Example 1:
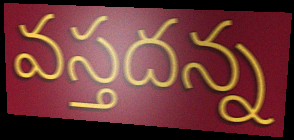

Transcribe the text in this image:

వస్తదన్న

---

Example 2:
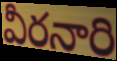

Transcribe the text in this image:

వీరనారి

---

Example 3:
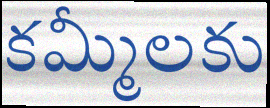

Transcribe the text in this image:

కమ్మీలకు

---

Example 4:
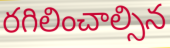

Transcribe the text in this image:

రగిలించాల్సిన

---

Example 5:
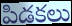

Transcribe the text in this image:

పిడకలు